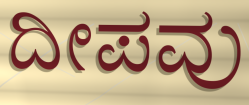
ದೀಪವು